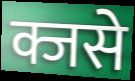
क्जसे